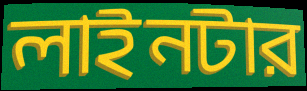
লাইনটার